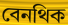
বেনথিক